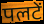
पलटें